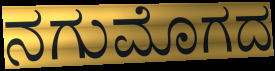
ನಗುಮೊಗದ